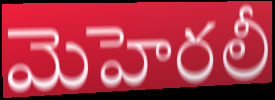
మెహెరలీ